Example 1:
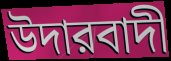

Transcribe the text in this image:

উদারবাদী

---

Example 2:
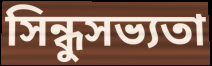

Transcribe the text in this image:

সিন্ধুসভ্যতা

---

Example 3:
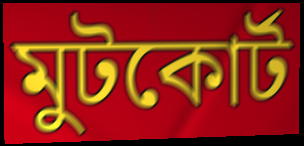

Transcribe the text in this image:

মুটকোর্ট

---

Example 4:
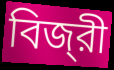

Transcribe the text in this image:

বিজ্‌রী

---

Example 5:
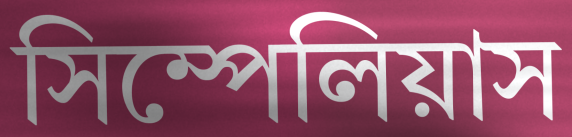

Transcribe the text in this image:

সিম্পেলিয়াস